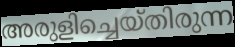
അരുളിച്ചെയ്തിരുന്ന